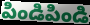
పిండిపిండి